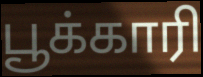
பூக்காரி